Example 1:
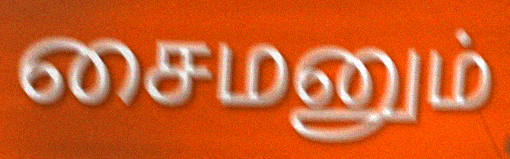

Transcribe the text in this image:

சைமனும்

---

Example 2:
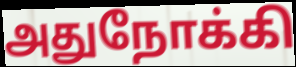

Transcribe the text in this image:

அதுநோக்கி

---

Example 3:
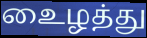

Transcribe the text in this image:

உைழத்து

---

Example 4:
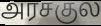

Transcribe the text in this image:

அரசகுல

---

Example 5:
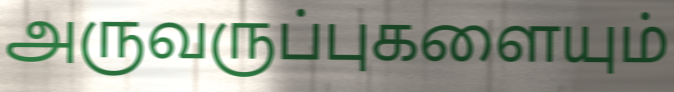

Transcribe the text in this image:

அருவருப்புகளையும்